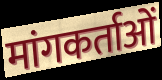
मांगकर्ताओं